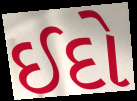
ઈદો